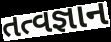
તત્વજ્ઞાન